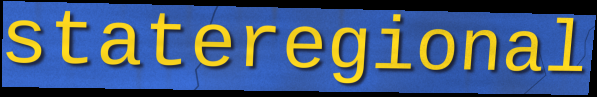
stateregional